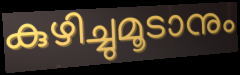
കുഴിച്ചുമൂടാനും